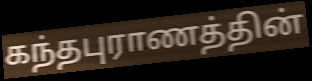
கந்தபுராணத்தின்